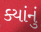
ક્યાંનું